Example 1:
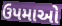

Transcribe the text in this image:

ઉપમાઓ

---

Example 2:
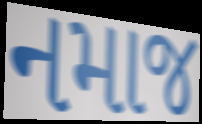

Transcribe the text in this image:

નમાજ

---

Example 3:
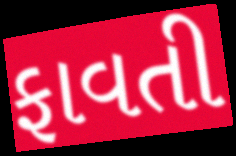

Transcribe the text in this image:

ફાવતી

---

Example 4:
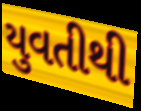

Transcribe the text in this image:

યુવતીથી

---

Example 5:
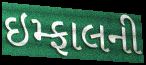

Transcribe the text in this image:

ઇમ્ફાલની